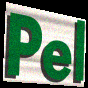
Pel